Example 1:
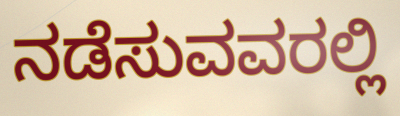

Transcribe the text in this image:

ನಡೆಸುವವರಲ್ಲಿ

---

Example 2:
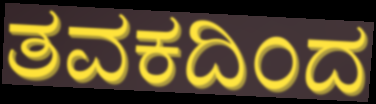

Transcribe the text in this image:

ತವಕದಿಂದ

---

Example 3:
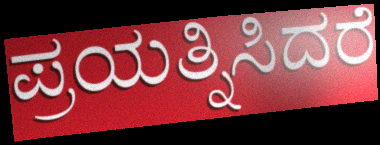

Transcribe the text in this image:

ಪ್ರಯತ್ನಿಸಿದರೆ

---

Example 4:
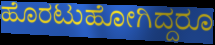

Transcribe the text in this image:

ಹೊರಟುಹೋಗಿದ್ದರೂ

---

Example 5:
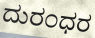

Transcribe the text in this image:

ದುರಂಧರ